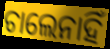
ଚାଲେନାହିଁ